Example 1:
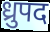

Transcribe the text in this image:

ध्रुपद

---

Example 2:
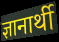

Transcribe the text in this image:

ज्ञानार्थी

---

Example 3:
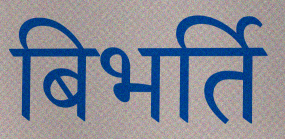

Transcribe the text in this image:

बिभर्ति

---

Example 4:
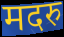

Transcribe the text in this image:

मदरु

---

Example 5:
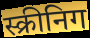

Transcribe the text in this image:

स्क्रीनिग